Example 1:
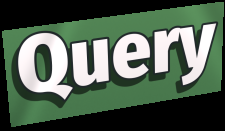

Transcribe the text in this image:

Query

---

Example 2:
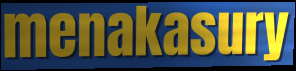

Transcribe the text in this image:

menakasury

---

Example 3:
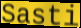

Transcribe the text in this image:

Sasti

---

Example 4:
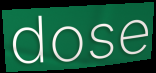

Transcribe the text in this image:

dose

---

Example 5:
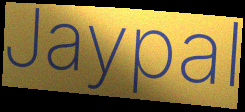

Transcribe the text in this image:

Jaypal